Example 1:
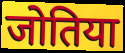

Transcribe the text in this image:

जोतिया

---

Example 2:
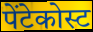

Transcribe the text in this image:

पेंटेकोस्ट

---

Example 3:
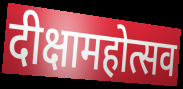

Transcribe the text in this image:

दीक्षामहोत्सव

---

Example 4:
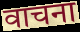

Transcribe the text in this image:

वाचना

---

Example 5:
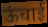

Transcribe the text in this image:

ऊंचाई